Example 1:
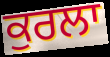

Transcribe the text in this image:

ਕੁਰਲਾ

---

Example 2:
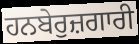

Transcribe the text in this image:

ਹਨਬੇਰੁਜ਼ਗਾਰੀ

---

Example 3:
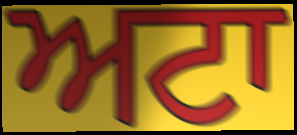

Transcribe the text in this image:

ਅਟਾ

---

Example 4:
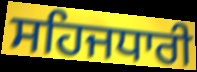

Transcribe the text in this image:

ਸਹਿਜਧਾਰੀ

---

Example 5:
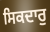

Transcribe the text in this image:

ਸਿਕਦਾਰੁ